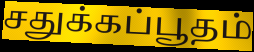
சதுக்கப்பூதம்